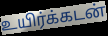
உயிர்க்கடன்